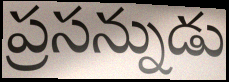
ప్రసన్నుడు